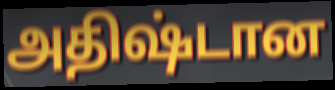
அதிஷ்டான